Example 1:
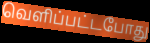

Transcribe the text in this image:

வெளிப்பட்டபோது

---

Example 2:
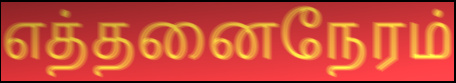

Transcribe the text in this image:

எத்தனைநேரம்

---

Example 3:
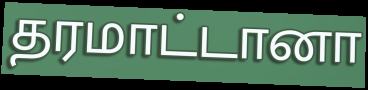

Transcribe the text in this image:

தரமாட்டானா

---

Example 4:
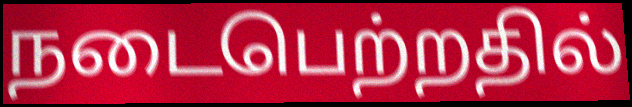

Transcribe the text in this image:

நடைபெற்றதில்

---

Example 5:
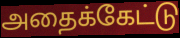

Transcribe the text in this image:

அதைக்கேட்டு